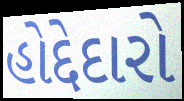
હોદ્દેદારો